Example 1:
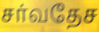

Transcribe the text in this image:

சர்வதேச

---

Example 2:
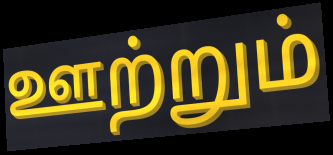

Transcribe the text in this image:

ஊற்றும்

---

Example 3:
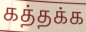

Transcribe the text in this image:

கத்தக்க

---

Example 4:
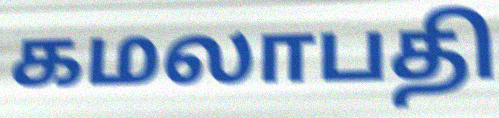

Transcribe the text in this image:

கமலாபதி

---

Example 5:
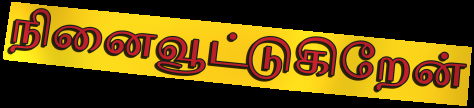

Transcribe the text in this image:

நினைவூட்டுகிறேன்